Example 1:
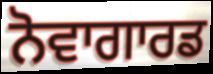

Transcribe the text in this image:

ਨੋਵਾਗਾਰਡ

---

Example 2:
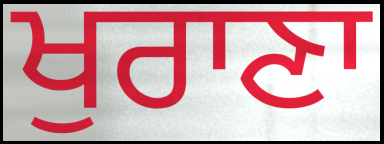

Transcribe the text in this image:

ਖੁਰਾਣਾ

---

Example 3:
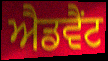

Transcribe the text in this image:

ਐਡਵੈਂਟ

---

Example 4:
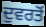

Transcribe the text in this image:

ਦੁਵਰਤੋਂ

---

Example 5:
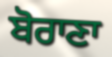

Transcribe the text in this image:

ਬੋਰਾਣਾ